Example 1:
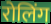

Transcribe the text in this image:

रोलिंग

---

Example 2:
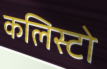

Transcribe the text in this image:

कलिस्टो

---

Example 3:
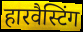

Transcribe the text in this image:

हारवैस्टिंग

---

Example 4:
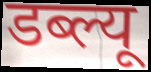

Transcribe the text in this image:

डब्ल्यू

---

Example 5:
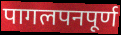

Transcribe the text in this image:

पागलपनपूर्ण